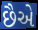
છૈએ